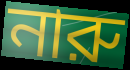
নারু